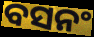
ବସନଂ